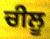
ਚੀਲੂ